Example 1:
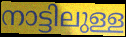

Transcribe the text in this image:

നാട്ടിലുള്ള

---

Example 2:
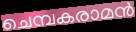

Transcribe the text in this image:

ചെമ്പകരാമൻ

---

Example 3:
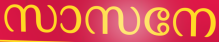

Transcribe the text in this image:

സാസനേ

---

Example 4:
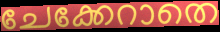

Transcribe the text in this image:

ചേക്കേറാതെ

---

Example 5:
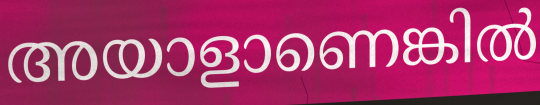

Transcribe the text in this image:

അയാളാണെങ്കിൽ